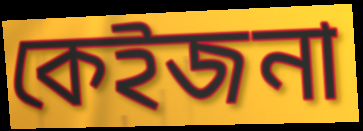
কেইজনা